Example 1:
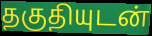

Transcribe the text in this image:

தகுதியுடன்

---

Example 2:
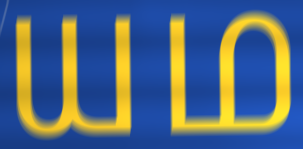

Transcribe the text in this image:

யம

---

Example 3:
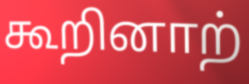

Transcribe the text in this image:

கூறினாற்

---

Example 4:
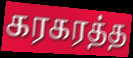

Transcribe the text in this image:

கரகரத்த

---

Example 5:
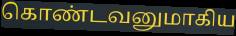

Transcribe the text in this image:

கொண்டவனுமாகிய